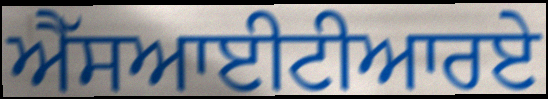
ਐੱਸਆਈਟੀਆਰਏ